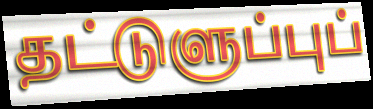
தட்டுளுப்புப்